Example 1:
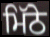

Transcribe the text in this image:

ਮਿੱਠੇ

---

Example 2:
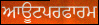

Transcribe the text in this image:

ਆਊਟਪਰਫਾਰਮ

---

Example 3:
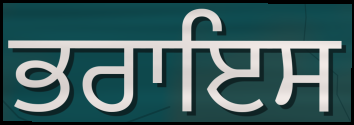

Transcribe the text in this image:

ਭਰਾਇਸ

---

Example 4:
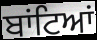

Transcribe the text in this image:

ਬਾਂਟਿਆਂ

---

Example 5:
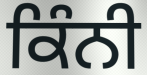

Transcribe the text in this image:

ਕਿੰਨੀ